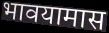
भावयामास